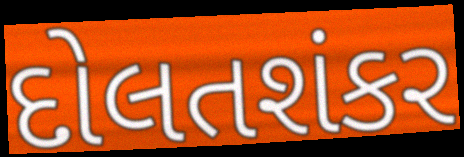
દોલતશંકર